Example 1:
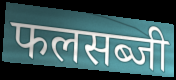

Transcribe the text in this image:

फलसब्जी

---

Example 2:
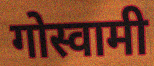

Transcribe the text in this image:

गोस्वामी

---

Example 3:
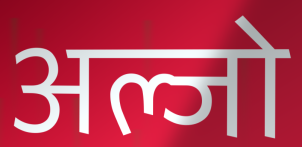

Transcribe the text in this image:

अल्जो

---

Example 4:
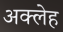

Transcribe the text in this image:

अक्लेह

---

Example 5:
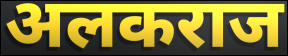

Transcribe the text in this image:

अलकराज